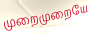
முறைமுறையே